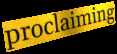
proclaiming